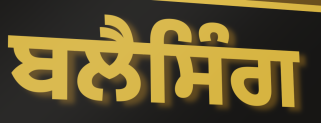
ਬਲੈਸਿੰਗ